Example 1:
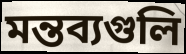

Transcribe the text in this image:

মন্তব্যগুলি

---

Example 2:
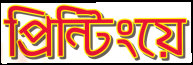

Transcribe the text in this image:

প্রিন্টিংয়ে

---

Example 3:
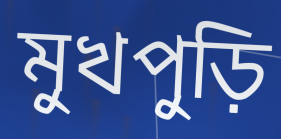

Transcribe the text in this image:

মুখপুড়ি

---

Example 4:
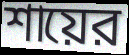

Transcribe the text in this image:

শায়ের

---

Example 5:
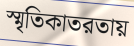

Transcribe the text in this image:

স্মৃতিকাতরতায়